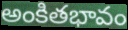
అంకితభావం